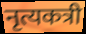
नृत्यकत्री